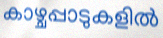
കാഴ്ചപ്പാടുകളിൽ